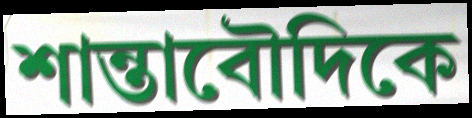
শান্তাবৌদিকে